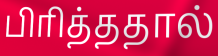
பிரித்ததால்